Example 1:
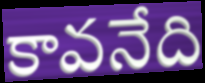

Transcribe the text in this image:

కావనేది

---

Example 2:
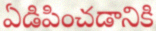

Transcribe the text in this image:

ఏడిపించడానికి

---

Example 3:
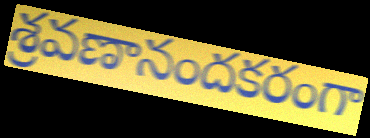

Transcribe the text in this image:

శ్రవణానందకరంగా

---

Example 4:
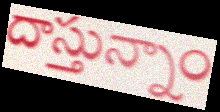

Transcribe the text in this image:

దాస్తున్నాం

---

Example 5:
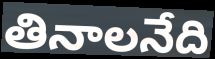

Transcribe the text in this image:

తినాలనేది